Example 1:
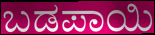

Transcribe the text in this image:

ಬಡಪಾಯಿ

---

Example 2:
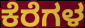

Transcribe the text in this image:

ಕೆರೆಗಳ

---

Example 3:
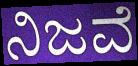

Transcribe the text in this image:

ನಿಜವೆ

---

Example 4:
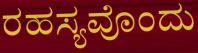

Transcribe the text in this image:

ರಹಸ್ಯವೊಂದು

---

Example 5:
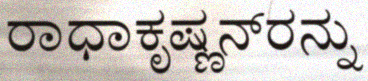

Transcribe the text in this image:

ರಾಧಾಕೃಷ್ಣನ್‌ರನ್ನು